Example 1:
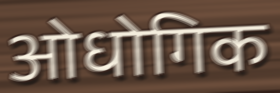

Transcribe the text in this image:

ओधोगिक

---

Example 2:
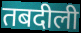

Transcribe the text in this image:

तबदीली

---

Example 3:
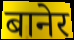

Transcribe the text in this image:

बानेर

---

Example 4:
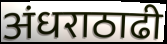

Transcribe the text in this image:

अंधराठाढी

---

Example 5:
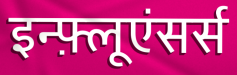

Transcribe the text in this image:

इन्फ़्लूएंसर्स